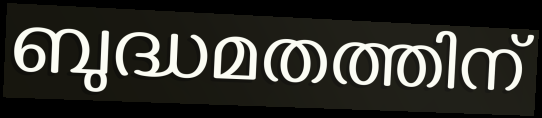
ബുദ്ധമതത്തിന്